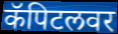
कॅपिटलवर